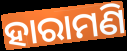
ହାରାମଣି